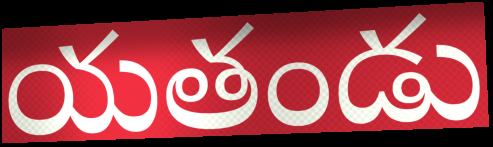
యతండు